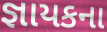
જ્ઞાયકના